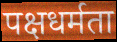
पक्षधर्मता